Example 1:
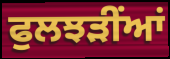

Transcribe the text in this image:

ਫੁਲਝੜੀਂਆਂ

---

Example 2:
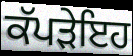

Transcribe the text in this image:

ਕੱਪੜੇਇਹ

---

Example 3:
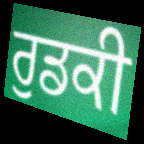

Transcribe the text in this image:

ਰੁਡਕੀ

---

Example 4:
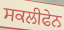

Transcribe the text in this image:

ਸਕਲੀਫੇਨ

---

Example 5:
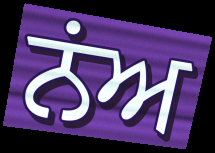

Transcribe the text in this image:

ਨਂਅ